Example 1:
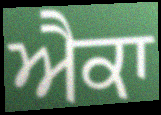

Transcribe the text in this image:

ਐਕਾ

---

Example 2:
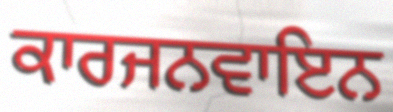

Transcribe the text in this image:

ਕਾਰਜਨਵਾਇਨ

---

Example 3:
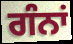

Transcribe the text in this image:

ਗੰਨਾਂ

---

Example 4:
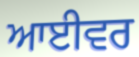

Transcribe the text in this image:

ਆਈਵਰ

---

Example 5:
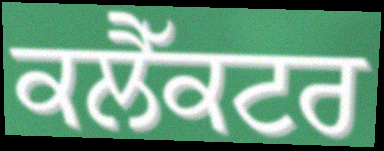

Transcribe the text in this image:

ਕਲੈੱਕਟਰ